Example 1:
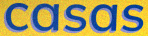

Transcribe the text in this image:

casas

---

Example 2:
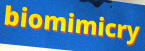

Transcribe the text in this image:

biomimicry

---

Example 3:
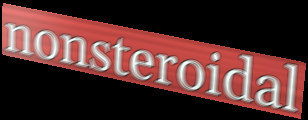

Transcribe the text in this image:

nonsteroidal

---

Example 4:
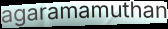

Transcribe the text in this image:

agaramamuthan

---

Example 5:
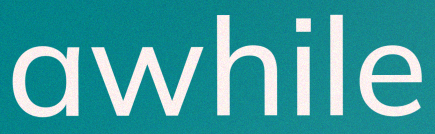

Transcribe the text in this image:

awhile